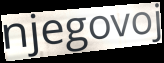
njegovoj